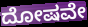
ದೋಷವೇ